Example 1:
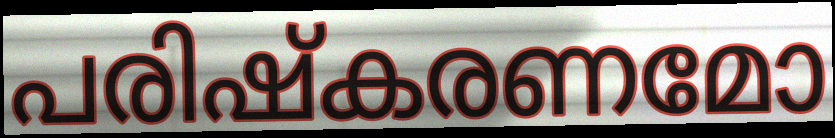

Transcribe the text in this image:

പരിഷ്കരണമോ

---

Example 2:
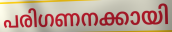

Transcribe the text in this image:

പരിഗണനക്കായി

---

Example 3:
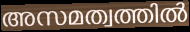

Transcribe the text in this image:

അസമത്വത്തിൽ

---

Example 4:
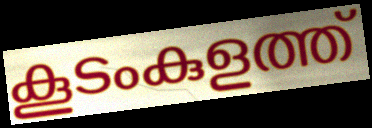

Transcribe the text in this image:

കൂടംകുളത്ത്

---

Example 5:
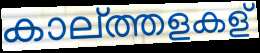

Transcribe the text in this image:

കാല്ത്തളകള്